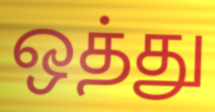
ஒத்து